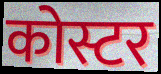
कोस्टर